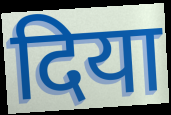
दिया